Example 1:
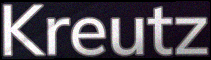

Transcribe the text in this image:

Kreutz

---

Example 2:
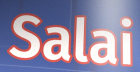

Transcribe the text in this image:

Salai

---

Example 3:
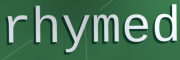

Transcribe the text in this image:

rhymed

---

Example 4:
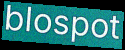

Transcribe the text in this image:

blospot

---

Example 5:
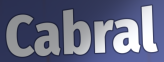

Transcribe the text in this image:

Cabral